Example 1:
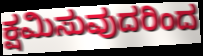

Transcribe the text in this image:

ಕ್ಷಮಿಸುವುದರಿಂದ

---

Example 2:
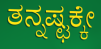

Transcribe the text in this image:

ತನ್ನಷ್ಟಕ್ಕೇ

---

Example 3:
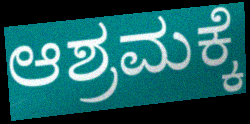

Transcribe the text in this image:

ಆಶ್ರಮಕ್ಕೆ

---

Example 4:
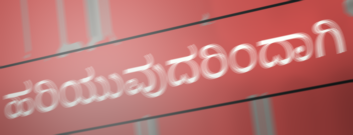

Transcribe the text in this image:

ಹರಿಯುವುದರಿಂದಾಗಿ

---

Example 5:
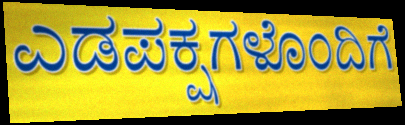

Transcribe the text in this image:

ಎಡಪಕ್ಷಗಳೊಂದಿಗೆ